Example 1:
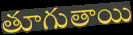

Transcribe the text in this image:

తూగుతాయి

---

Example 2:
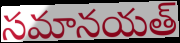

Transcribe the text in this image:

సమానయత్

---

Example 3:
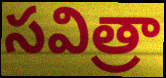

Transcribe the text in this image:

సవిత్రా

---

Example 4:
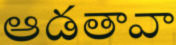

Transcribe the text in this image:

ఆడతావా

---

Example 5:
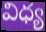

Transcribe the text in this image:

విధ్య